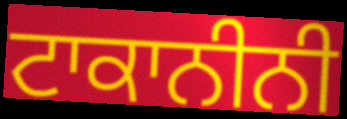
ਟਾਕਾਨੀਨੀ